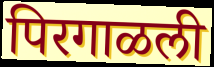
पिरगाळली